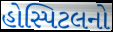
હોસ્પિટલનો